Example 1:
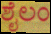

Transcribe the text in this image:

ಶೈಲಂ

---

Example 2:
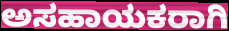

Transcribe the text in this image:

ಅಸಹಾಯಕರಾಗಿ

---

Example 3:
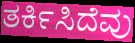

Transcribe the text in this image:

ತರ್ಕಿಸಿದೆವು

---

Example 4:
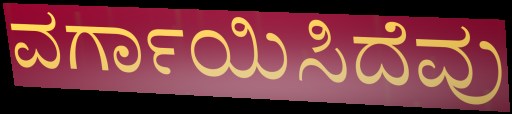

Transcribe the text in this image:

ವರ್ಗಾಯಿಸಿದೆವು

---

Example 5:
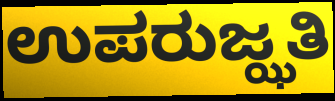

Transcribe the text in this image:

ಉಪರುಜ್ಝತಿ